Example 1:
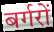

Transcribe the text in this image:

बर्गरों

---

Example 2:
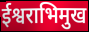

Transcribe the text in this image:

ईश्वराभिमुख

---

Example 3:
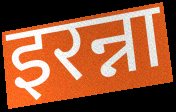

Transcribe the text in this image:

इरन्ना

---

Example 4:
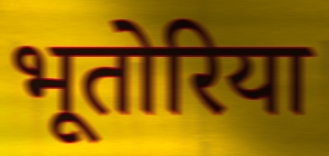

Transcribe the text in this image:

भूतोरिया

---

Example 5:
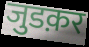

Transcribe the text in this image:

जुडक़र